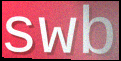
swb